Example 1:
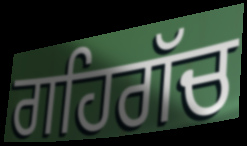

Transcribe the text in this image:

ਗਹਿਗੱਚ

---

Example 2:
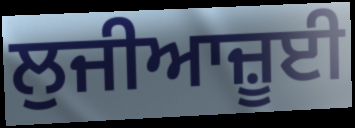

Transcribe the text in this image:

ਲੁਜੀਆਜ਼ੂਈ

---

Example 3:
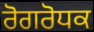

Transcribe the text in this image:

ਰੋਗਰੋਧਕ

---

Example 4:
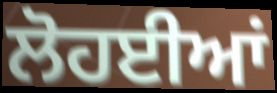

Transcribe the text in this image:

ਲੋਹਈਆਂ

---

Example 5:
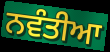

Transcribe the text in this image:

ਨਵੰਤੀਆ